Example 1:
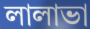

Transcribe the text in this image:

লালাভা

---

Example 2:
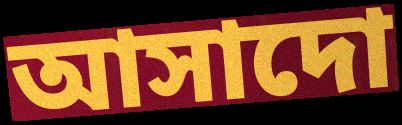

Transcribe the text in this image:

আসাদো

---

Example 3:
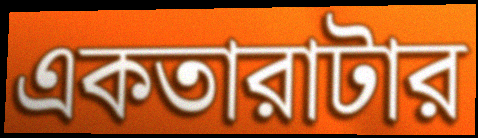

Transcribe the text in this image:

একতারাটার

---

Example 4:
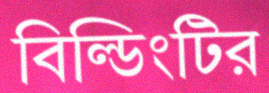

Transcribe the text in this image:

বিল্ডিংটির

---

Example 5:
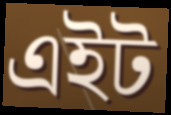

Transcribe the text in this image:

এইট